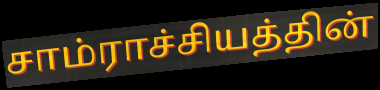
சாம்ராச்சியத்தின்